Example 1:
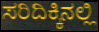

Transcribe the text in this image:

ಸರಿದಿಕ್ಕಿನಲ್ಲಿ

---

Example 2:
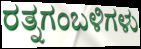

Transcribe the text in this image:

ರತ್ನಗಂಬಳಿಗಳು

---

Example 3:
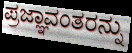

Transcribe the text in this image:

ಪ್ರಜ್ಞಾವಂತರನ್ನು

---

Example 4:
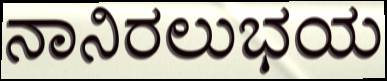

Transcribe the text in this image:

ನಾನಿರಲುಭಯ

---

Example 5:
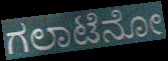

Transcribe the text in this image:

ಗಲಾಟೆನೋ